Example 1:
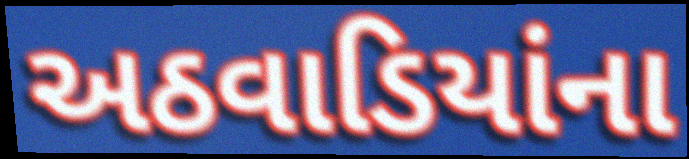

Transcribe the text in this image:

અઠવાડિયાંના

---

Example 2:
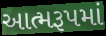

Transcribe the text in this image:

આત્મરૂપમાં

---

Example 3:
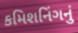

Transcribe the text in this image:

કમિશનિંગનું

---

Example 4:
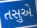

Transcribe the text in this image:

તસુએ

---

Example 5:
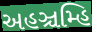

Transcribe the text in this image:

અહઞ્ચમ્હિ